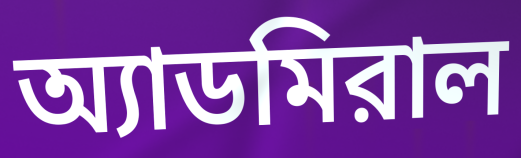
অ্যাডমিরাল